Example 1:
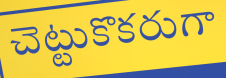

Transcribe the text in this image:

చెట్టుకొకరుగా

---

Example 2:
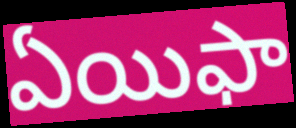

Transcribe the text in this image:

ఏయిఫా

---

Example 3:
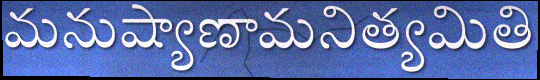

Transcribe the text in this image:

మనుష్యాణామనిత్యమితి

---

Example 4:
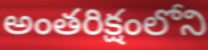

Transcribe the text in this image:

అంతరిక్షంలోని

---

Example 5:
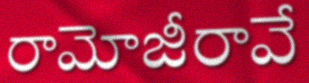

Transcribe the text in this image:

రామోజీరావే